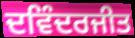
ਦਵਿੰਦਰਜੀਤ